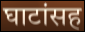
घाटांसह